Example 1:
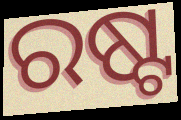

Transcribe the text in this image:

ରଷ୍ଟ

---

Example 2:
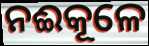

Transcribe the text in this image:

ନଈକୂଳେ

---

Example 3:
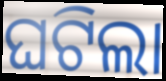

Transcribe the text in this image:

ଘଟିଲା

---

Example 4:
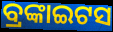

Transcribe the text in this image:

ବ୍ରଙ୍କାଇଟସ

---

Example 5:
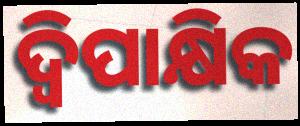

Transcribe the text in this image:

ଦ୍ୱିପାକ୍ଷିକ